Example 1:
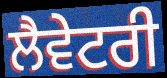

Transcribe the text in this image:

ਲੈਵੇਟਰੀ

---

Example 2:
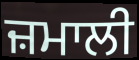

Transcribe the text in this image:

ਜ਼ਮਾਲੀ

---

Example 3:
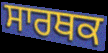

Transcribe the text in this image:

ਸਾਰਥਕ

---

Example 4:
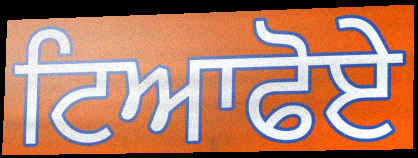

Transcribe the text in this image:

ਟਿਆਫੋਏ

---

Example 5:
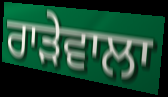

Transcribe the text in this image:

ਰਾੜੇਵਾਲਾ